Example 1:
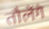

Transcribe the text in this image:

तौलेंगे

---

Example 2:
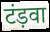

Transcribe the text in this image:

टंड़वा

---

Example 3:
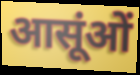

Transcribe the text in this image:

आसूंओं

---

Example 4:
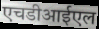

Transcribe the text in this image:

एचडीआईएल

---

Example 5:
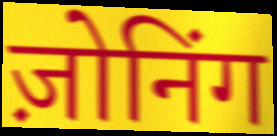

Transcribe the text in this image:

ज़ोनिंग